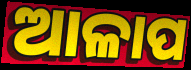
ଆଳାପ